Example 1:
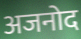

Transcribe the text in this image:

अजनोद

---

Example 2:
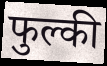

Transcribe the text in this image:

फुल्की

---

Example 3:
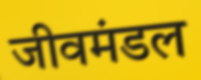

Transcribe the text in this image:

जीवमंडल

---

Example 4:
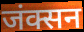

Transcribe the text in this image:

जंक्सन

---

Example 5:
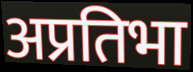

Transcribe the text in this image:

अप्रतिभा